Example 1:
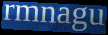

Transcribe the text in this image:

rmnagu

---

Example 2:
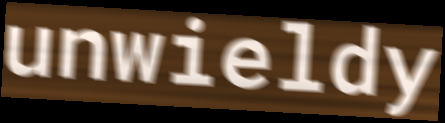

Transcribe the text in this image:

unwieldy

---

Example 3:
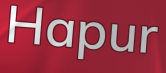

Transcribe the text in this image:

Hapur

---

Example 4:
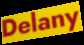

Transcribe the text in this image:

Delany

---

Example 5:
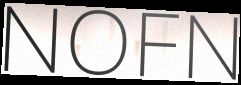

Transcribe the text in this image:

NOFN